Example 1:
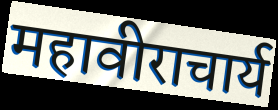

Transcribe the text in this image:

महावीराचार्य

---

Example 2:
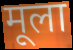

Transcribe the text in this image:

मूला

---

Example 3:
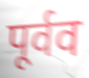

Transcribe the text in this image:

पूर्वव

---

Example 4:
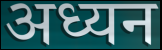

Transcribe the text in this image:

अध्यन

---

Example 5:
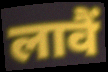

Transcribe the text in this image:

लावैं